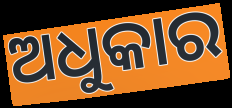
ଅଧୁକାର